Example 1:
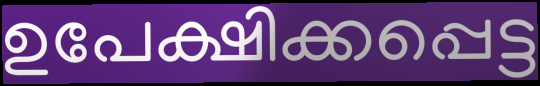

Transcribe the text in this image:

ഉപേക്ഷിക്കപ്പെട്ട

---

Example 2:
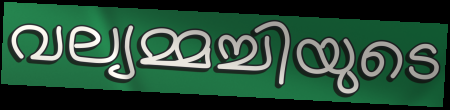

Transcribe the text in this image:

വല്യമ്മച്ചിയുടെ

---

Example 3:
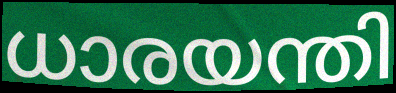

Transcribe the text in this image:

ധാരയന്തി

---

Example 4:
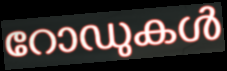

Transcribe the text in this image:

റോഡുകൾ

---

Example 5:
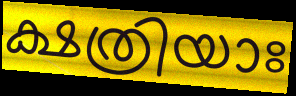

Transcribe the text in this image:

ക്ഷത്രിയാഃ